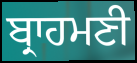
ਬ੍ਰਾਹਮਣੀ